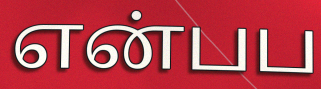
என்பப